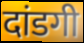
दांडगी